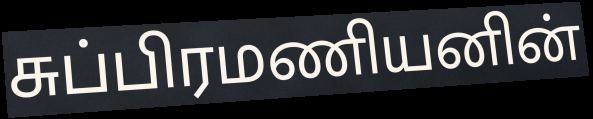
சுப்பிரமணியனின்